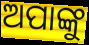
ଅପାଙ୍କୁ